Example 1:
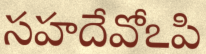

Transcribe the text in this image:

సహదేవోఽపి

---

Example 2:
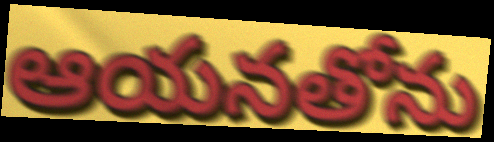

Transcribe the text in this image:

ఆయనతోను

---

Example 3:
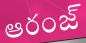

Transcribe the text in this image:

ఆరంజ్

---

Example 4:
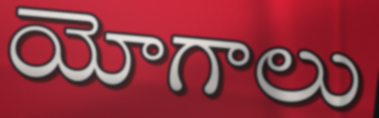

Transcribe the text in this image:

యోగాలు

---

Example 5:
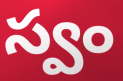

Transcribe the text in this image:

స్వం